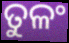
ତୁଳଂ